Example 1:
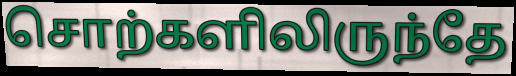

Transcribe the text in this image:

சொற்களிலிருந்தே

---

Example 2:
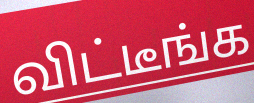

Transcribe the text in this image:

விட்டீங்க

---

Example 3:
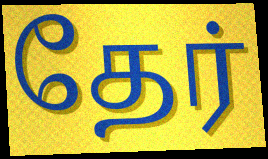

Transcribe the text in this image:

தேர்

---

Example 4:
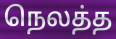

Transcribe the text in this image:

நெலத்த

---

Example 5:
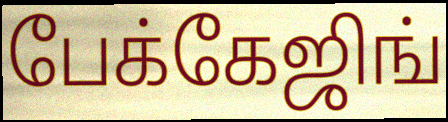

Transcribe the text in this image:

பேக்கேஜிங்